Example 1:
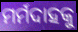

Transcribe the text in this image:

ମର୍ମଦାହକୁ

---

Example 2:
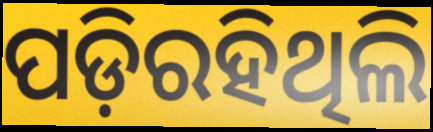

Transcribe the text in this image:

ପଡ଼ିରହିଥିଲି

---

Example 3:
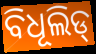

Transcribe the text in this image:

ବିଧୂଲିଡ୍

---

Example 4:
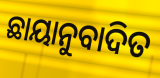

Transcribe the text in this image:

ଛାୟାନୁବାଦିତ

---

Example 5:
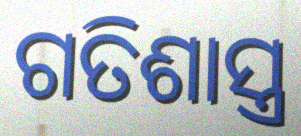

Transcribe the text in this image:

ଗତିଶାସ୍ତ୍ର